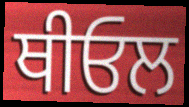
ਥੀਓਲ